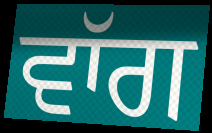
ਵਾੱਗ